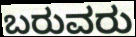
ಬರುವರು